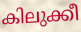
കിലുക്കീ